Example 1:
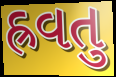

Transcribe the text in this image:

હ્રવતુ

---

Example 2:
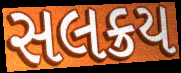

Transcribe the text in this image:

સલક્રય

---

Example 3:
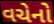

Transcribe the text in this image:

વચેનો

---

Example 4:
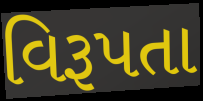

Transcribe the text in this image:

વિરૂપતા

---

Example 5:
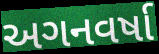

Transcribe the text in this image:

અગનવર્ષા